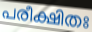
പരീക്ഷിതഃ